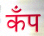
कॅंप